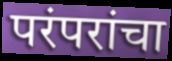
परंपरांचा